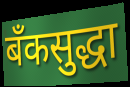
बँकसुद्धा